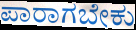
ಪಾರಾಗಬೇಕು